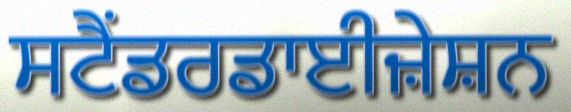
ਸਟੈਂਡਰਡਾਈਜ਼ੇਸ਼ਨ